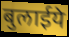
बुलाईये